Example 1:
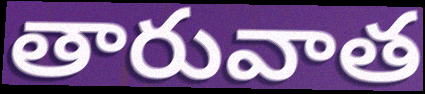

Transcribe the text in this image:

తారువాత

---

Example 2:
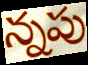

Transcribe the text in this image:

న్నపు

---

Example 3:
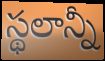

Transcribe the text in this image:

స్థలాన్నీ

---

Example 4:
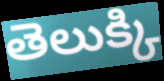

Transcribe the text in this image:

తెలుక్కి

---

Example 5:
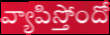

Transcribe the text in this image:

వ్యాపిస్తోందో